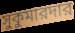
সুকুমারদার